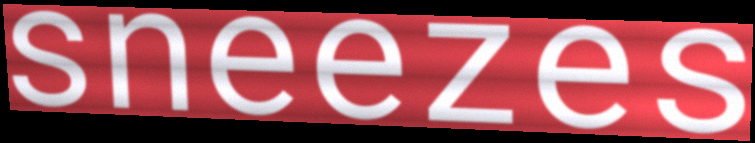
sneezes